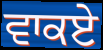
ਵਾਕਏ